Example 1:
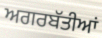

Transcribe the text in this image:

ਅਗਰਬੱਤੀਆਂ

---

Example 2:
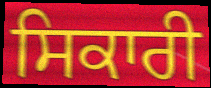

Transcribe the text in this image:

ਸਿਕਾਰੀ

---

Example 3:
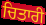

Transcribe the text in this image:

ਚਿਤਾਰੀ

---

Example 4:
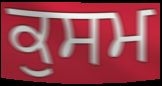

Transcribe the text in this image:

ਕੁਸਮ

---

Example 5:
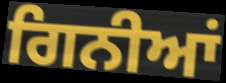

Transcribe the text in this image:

ਗਿਨੀਆਂ